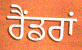
ਰੈਂਡਰਾਂ